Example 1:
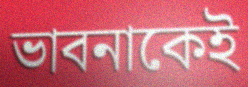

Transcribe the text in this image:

ভাবনাকেই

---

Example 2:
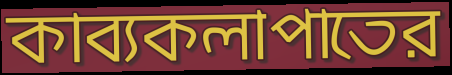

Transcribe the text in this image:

কাব্যকলাপাতের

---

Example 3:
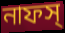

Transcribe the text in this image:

নাফস্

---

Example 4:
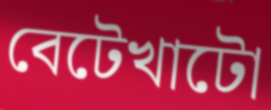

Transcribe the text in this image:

বেটেখাটো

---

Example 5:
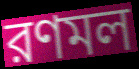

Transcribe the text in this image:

রণমল